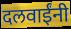
दलवाईंनी